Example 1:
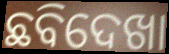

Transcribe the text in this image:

ଛବିଦେଖା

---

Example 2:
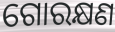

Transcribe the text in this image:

ଗୋରକ୍ଷଣ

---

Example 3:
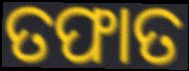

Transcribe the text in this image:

ତଫାତ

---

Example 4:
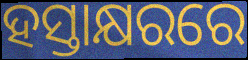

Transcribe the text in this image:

ହସ୍ତାକ୍ଷରରେ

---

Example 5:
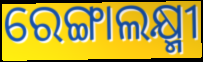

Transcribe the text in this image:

ରେଙ୍ଗାଲକ୍ଷ୍ମୀ